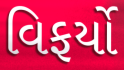
વિફર્યો